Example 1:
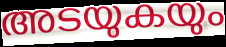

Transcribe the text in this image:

അടയുകയും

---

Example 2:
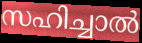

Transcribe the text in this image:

സഹിച്ചാൽ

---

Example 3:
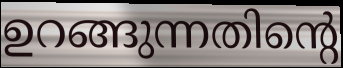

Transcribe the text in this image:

ഉറങ്ങുന്നതിന്റെ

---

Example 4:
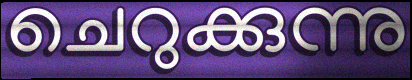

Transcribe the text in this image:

ചെറുക്കുന്നു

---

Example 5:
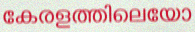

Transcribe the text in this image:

കേരളത്തിലെയോ